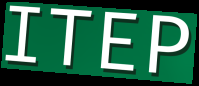
ITEP